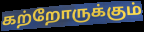
கற்றோருக்கும்